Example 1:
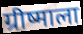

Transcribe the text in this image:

ग्रीष्माला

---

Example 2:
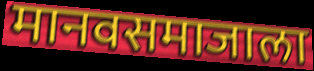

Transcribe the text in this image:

मानवसमाजाला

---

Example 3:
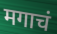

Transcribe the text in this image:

मगाचं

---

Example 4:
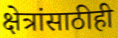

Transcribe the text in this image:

क्षेत्रांसाठीही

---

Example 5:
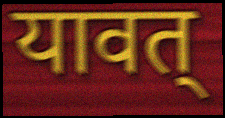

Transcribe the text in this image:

यावत्